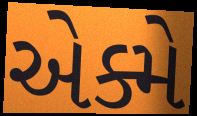
એક્મે